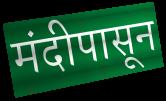
मंदीपासून